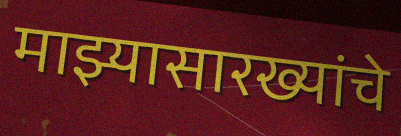
माझ्यासारख्यांचे